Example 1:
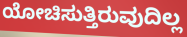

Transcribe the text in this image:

ಯೋಚಿಸುತ್ತಿರುವುದಿಲ್ಲ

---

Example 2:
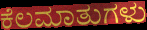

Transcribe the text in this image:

ಕೆಲಮಾತುಗಳು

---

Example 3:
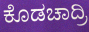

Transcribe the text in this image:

ಕೊಡಚಾದ್ರಿ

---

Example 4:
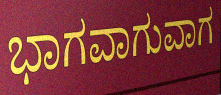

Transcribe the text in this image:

ಭಾಗವಾಗುವಾಗ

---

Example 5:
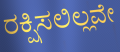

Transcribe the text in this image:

ರಕ್ಷಿಸಲಿಲ್ಲವೇ